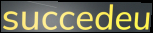
succedeu